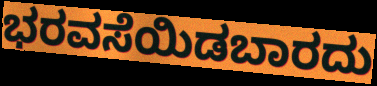
ಭರವಸೆಯಿಡಬಾರದು